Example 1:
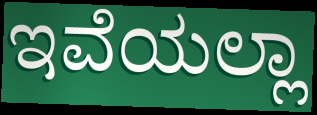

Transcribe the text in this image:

ಇವೆಯಲ್ಲಾ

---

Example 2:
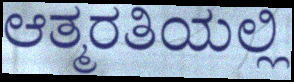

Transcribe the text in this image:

ಆತ್ಮರತಿಯಲ್ಲಿ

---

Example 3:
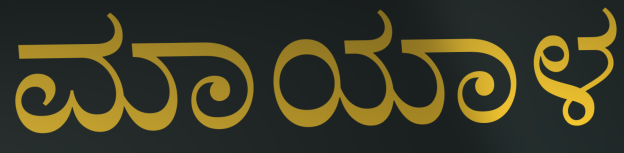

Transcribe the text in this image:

ಮಾಯಾಳ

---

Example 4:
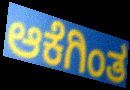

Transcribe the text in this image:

ಆಕೆಗಿಂತ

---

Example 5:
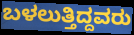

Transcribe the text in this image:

ಬಳಲುತ್ತಿದ್ದವರು